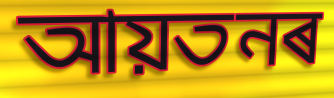
আয়তনৰ